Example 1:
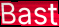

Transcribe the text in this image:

Bast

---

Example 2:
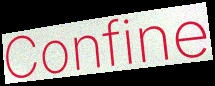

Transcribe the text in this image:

Confine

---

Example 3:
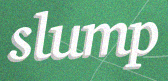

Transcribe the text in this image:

slump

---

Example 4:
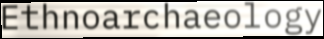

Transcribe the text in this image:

Ethnoarchaeology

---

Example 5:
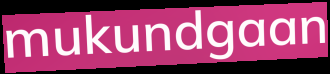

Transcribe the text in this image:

mukundgaan